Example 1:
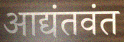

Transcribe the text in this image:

आद्यंतवंत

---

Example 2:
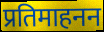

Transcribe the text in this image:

प्रतिमाहनन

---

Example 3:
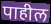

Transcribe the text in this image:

पाहील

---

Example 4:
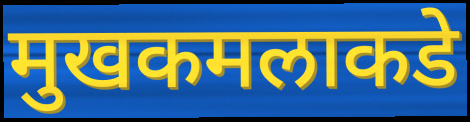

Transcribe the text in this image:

मुखकमलाकडे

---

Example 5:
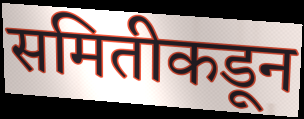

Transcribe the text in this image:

समितीकडून